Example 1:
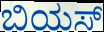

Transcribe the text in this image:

ಬಿಯಸ್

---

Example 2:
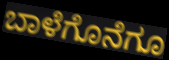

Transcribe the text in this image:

ಬಾಳೆಗೊನೆಗೂ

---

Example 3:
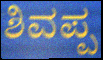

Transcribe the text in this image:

ಶಿವಪ್ಪ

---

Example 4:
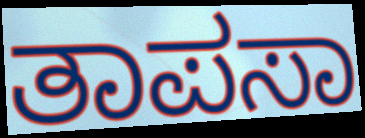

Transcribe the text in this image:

ತಾಪಸಾ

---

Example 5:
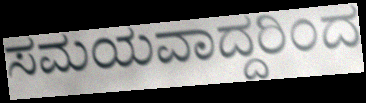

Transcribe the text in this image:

ಸಮಯವಾದ್ದರಿಂದ